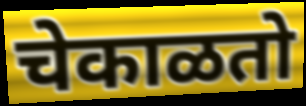
चेकाळतो